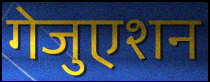
गेजुएशन